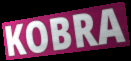
KOBRA